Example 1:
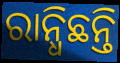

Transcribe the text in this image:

ରାନ୍ଧିଛନ୍ତି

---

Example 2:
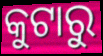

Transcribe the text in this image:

କୁଟାରୁ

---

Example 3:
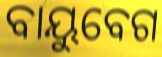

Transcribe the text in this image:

ବାୟୁବେଗ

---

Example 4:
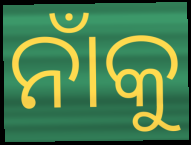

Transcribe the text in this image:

ନାଁକୁ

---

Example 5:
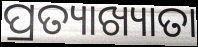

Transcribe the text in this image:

ପ୍ରତ୍ୟାଖ୍ୟାତା